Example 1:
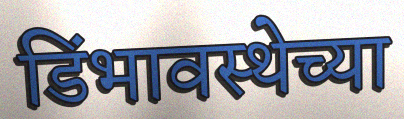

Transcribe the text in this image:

डिंभावस्थेच्या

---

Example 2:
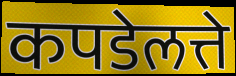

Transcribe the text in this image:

कपडेलत्ते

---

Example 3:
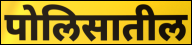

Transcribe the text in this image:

पोलिसातील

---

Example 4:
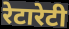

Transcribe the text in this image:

रेटारेटी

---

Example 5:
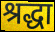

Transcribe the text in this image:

श्रद्धा